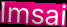
Imsai